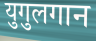
युगुलगान